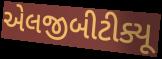
એલજીબીટીક્યૂ